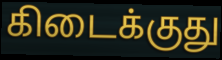
கிடைக்குது